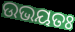
ଉଭୟତଃ